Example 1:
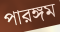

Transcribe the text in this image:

পারঙ্গম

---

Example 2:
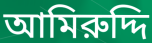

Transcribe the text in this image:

আমিরুদ্দি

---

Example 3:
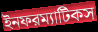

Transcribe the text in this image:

ইনফরম্যাটিকস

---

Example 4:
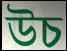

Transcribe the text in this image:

উচ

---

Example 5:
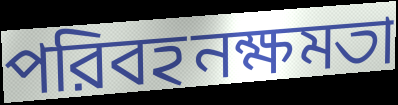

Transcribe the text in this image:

পরিবহনক্ষমতা